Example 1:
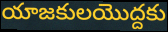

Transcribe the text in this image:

యాజకులయొద్దకు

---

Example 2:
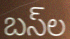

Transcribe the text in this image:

బస్‌ల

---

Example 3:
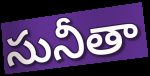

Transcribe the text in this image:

సునీతా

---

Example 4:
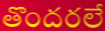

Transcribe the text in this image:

తొందరలే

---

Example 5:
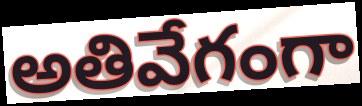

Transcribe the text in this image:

అతివేగంగా